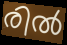
രിൽ